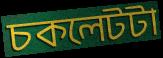
চকলেটটা